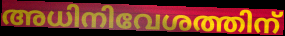
അധിനിവേശത്തിന്